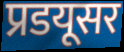
प्रडयूसर